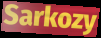
Sarkozy